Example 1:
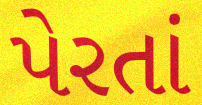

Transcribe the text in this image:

પેરતાં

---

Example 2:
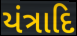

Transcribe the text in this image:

યંત્રાદિ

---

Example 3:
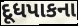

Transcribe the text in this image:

દૂધપાકના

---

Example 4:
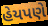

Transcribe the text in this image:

હેયપણે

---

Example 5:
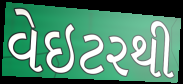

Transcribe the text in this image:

વેઇટરથી